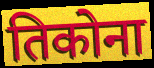
तिकोना